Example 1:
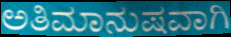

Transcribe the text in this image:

ಅತಿಮಾನುಷವಾಗಿ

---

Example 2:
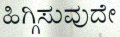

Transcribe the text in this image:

ಹಿಗ್ಗಿಸುವುದೇ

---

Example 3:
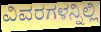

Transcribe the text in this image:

ವಿವರಗಳನ್ನಿಲ್ಲಿ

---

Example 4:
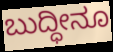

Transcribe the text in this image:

ಬುದ್ಧೀನೂ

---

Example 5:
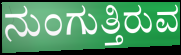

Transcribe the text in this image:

ನುಂಗುತ್ತಿರುವ